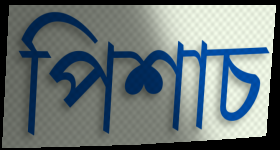
পিশাচ